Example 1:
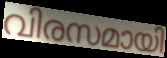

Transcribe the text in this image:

വിരസമായി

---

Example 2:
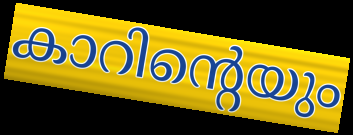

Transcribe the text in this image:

കാറിന്റെയും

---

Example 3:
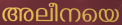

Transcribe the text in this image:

അലീനയെ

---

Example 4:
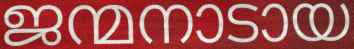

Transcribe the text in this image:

ജന്മനാടായ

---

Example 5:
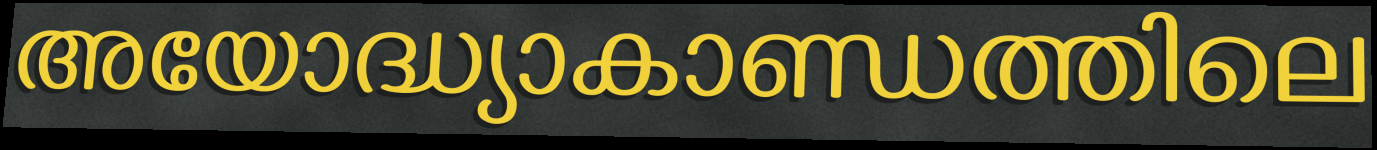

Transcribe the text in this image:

അയോദ്ധ്യാകാണ്ഡത്തിലെ